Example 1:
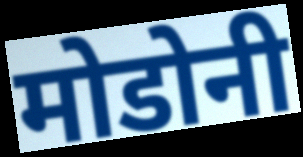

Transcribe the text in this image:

मोडोनी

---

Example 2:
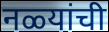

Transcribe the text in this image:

नळ्यांची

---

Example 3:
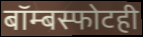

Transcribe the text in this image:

बॉम्बस्फोटही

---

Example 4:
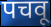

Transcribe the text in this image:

पचवू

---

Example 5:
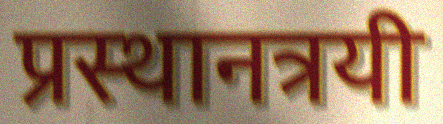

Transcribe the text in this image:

प्रस्थानत्रयी